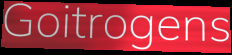
Goitrogens